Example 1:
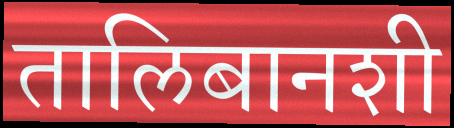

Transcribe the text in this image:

तालिबानशी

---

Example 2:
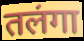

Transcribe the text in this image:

तलंगा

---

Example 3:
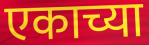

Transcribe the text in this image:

एकाच्या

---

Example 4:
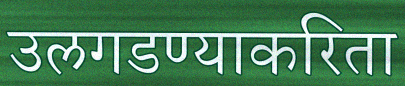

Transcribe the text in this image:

उलगडण्याकरिता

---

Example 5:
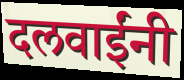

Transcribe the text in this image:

दलवाईंनी